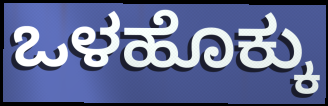
ಒಳಹೊಕ್ಕು